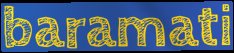
baramati